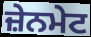
ਜ਼ੇਨਮੇਟ